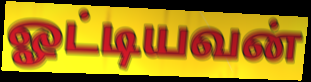
ஓட்டியவன்